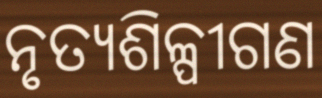
ନୃତ୍ୟଶିଳ୍ପୀଗଣ